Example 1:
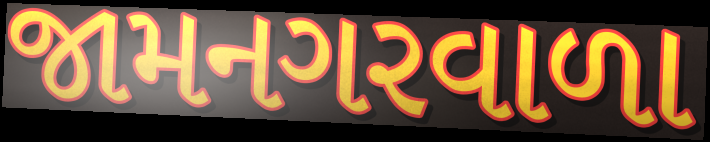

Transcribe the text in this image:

જામનગરવાળા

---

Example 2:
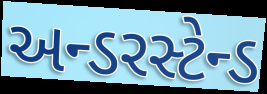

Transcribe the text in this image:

અન્ડરસ્ટેન્ડ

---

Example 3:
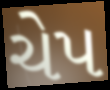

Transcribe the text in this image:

ચેપ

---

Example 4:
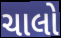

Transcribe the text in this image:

ચાલો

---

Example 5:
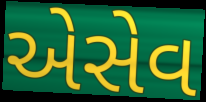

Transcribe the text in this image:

એસેવ